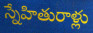
స్నేహితురాళ్లు